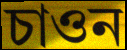
চাওন